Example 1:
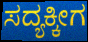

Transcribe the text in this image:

ಸದ್ಯಕ್ಕೀಗ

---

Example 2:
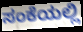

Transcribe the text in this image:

ಸಂಕೆಯಲ್ಲಿ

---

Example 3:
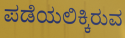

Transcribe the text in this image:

ಪಡೆಯಲಿಕ್ಕಿರುವ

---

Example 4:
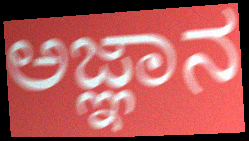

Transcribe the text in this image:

ಅಜ್ಞಾನ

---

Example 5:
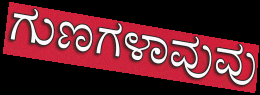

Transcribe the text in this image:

ಗುಣಗಳಾವುವು